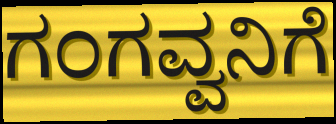
ಗಂಗವ್ವನಿಗೆ